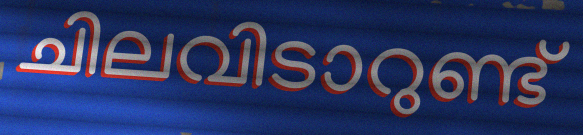
ചിലവിടാറുണ്ട്